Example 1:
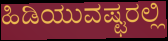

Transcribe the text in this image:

ಹಿಡಿಯುವಷ್ಟರಲ್ಲಿ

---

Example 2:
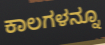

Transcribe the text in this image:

ಕಾಲಗಳನ್ನೂ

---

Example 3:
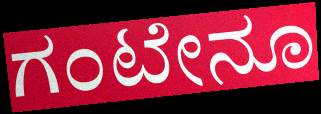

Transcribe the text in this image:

ಗಂಟೇನೂ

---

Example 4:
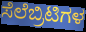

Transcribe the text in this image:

ಸೆಲೆಬ್ರಿಟಿಗಳ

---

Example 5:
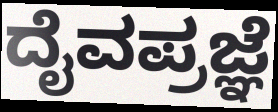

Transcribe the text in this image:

ದೈವಪ್ರಜ್ಞೆ